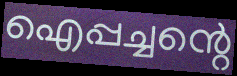
ഐപ്പച്ചന്റെ